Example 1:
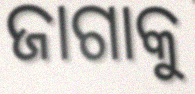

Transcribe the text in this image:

ଜାଗାକୁ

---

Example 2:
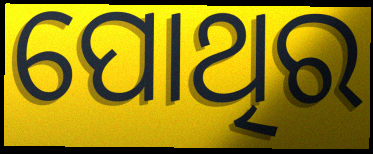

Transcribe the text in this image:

ପୋଥିର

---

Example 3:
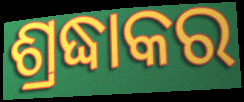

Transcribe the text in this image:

ଶ୍ରଦ୍ଧାକର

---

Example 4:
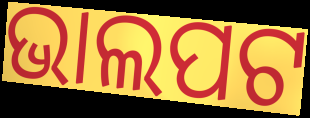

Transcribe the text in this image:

ଭାଲପଟ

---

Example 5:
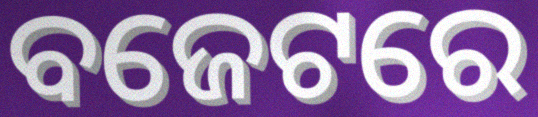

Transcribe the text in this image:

ବଜେଟରେ